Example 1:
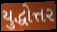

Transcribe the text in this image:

યુદ્ધોત્તર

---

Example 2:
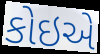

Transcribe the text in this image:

કોઇએ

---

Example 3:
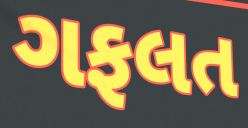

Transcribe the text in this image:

ગફલત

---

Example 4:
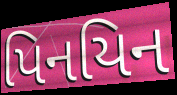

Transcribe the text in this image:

પિનયિન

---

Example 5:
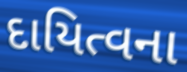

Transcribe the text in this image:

દાયિત્વના